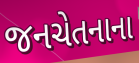
જનચેતનાના